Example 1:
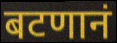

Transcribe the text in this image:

बटणानं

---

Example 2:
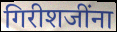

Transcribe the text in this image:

गिरीशजींना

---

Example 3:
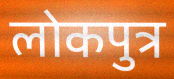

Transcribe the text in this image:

लोकपुत्र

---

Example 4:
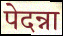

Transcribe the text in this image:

पेदन्ना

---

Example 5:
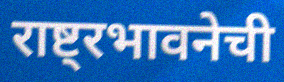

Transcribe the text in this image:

राष्ट्रभावनेची